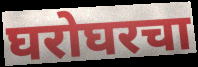
घरोघरचा